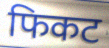
फिकट